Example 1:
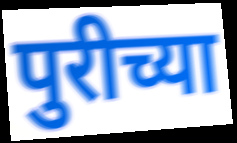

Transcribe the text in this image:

पुरीच्या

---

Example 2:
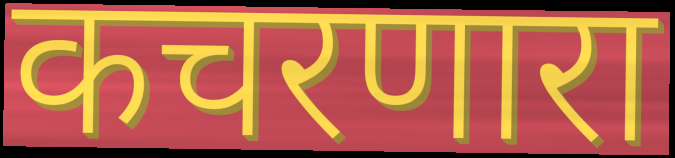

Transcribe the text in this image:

कचरणारा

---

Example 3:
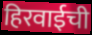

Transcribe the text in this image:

हिरवाईची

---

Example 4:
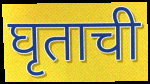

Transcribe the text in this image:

घृताची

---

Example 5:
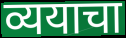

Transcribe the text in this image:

व्ययाचा